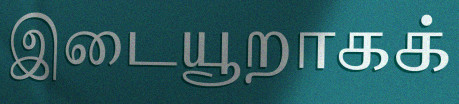
இடையூறாகக்